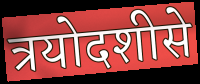
त्रयोदशीसे